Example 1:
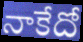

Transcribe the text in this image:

నాకేదో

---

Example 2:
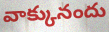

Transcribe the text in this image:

వాక్కునందు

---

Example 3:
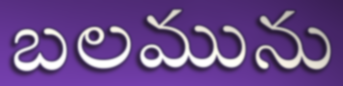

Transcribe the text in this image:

బలమును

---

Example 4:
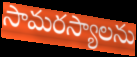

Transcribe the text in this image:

సామరస్యాలను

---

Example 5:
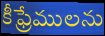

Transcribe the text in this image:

కీఫ్రేములను